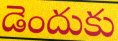
డెందుకు